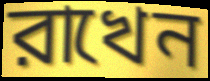
রাখেন